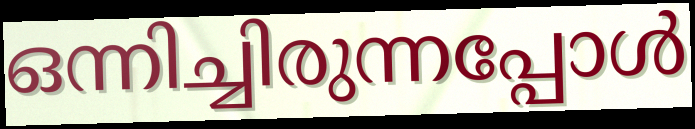
ഒന്നിച്ചിരുന്നപ്പോൾ